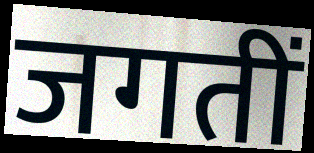
जगतीं